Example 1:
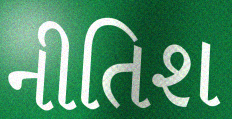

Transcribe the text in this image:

નીતિશ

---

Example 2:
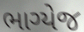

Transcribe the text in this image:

ભાગ્યેજ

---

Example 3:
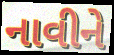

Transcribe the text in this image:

નાવીને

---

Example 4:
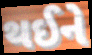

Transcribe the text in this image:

થઈને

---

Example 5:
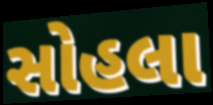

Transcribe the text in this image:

સોહલા